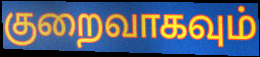
குறைவாகவும்